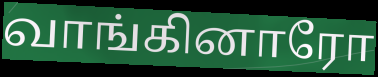
வாங்கினாரோ